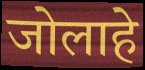
जोलाहे